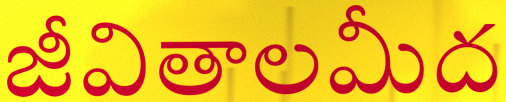
జీవితాలమీద